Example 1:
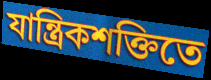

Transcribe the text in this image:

যান্ত্রিকশক্তিতে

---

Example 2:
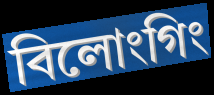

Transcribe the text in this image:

বিলোংগিং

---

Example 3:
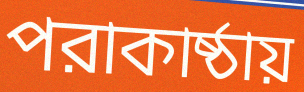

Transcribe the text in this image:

পরাকাষ্ঠায়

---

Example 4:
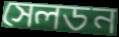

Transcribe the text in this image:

সেলডন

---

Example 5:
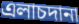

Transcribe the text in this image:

এলাচদানা